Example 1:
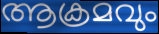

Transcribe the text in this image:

ആക്രമവും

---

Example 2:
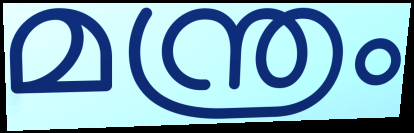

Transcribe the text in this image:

മന്ത്രം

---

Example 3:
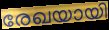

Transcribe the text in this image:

രേഖയായി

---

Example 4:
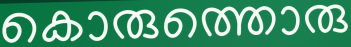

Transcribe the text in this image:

കൊരുത്തൊരു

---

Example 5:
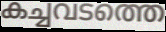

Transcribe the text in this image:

കച്ചവടത്തെ